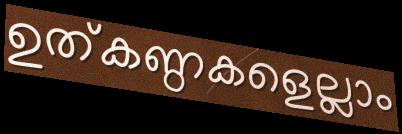
ഉത്കണ്ഠകളെല്ലാം